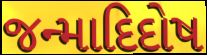
જન્માદિદોષ